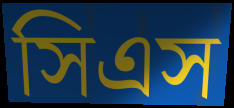
সিএস